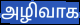
அழிவாக